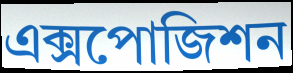
এক্সপোজিশন